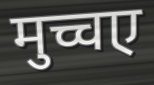
मुच्चए